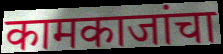
कामकाजांचा